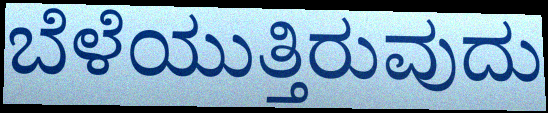
ಬೆಳೆಯುತ್ತಿರುವುದು